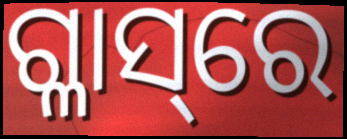
ଗ୍ଳାସ୍‌ରେ